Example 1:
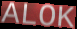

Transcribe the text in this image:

ALOK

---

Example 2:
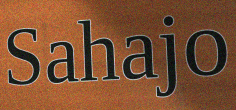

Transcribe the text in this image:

Sahajo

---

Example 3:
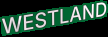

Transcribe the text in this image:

WESTLAND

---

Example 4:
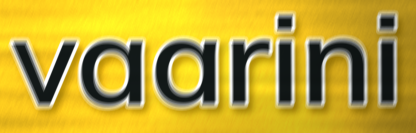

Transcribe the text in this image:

vaarini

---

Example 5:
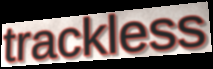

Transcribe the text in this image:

trackless